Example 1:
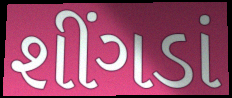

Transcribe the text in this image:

શીંગડાં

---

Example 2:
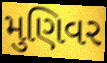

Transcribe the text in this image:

મુણિવર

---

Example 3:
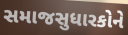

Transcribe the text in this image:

સમાજસુધારકોને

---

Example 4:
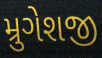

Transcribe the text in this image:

મ્રુગેશજી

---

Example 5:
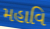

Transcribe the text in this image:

મહાવિ